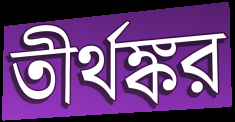
তীর্থঙ্কর